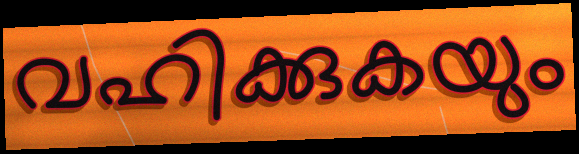
വഹിക്കുകയും